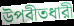
উপবীতধারী